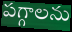
పగ్గాలను